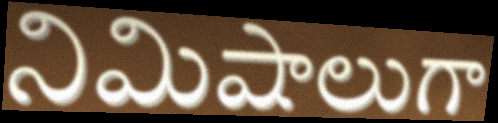
నిమిషాలుగా